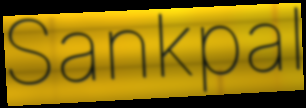
Sankpal